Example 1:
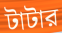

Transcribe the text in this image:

টাটার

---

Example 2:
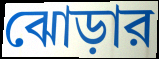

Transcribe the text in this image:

ঝোড়ার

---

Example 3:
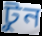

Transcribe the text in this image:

টুন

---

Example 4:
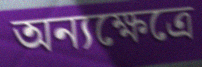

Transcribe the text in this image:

অন্যক্ষেত্রে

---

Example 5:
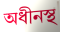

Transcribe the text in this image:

অধীনস্থ